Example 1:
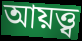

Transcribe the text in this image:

আয়ত্ত্ব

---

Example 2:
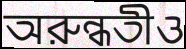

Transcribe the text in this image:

অরুন্ধতীও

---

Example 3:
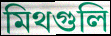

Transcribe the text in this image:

মিথগুলি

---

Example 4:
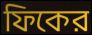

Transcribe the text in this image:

ফিকের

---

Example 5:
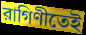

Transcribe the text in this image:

রাগিণীতেই